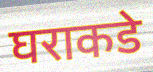
घराकडे